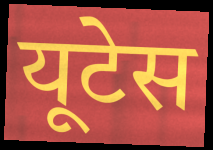
यूटेस